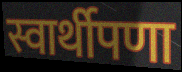
स्वार्थीपणा